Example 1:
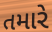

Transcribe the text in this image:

તમારે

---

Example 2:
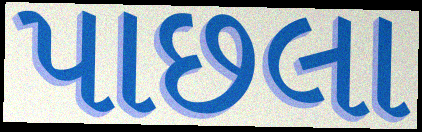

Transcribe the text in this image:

પાછલા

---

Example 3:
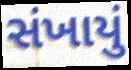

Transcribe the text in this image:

સંખાયું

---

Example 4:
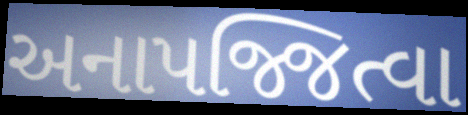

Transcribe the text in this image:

અનાપજ્જિત્વા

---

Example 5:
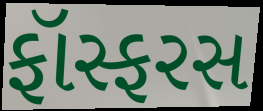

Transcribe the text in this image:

ફૉસ્ફરસ